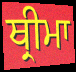
ਥ੍ਰੀਮਾ